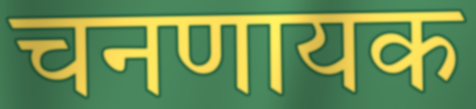
चनणायक